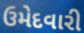
ઉમેદવારી